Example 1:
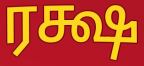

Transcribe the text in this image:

ரக்ஷ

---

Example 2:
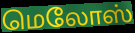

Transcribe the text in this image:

மெலோஸ்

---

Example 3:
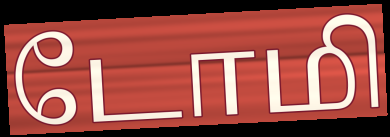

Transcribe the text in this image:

டோமி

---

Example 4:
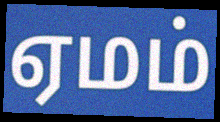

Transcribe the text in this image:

ஏமம்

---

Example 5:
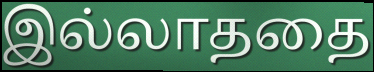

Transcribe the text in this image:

இல்லாததை